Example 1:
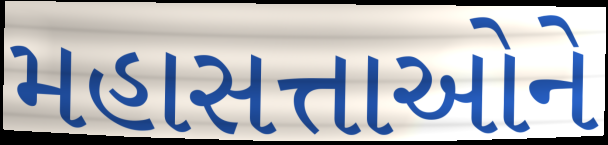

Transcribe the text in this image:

મહાસત્તાઓને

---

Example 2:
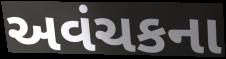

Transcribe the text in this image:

અવંચકના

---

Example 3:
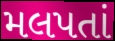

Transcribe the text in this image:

મલપતાં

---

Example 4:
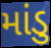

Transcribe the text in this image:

માંડુ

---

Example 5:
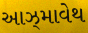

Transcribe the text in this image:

આઝ્માવેથ